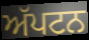
ਅੱਪਟਨ